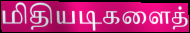
மிதியடிகளைத்